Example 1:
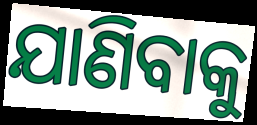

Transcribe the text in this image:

ଯାଣିବାକୁ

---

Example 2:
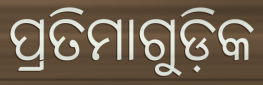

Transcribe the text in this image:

ପ୍ରତିମାଗୁଡ଼ିକ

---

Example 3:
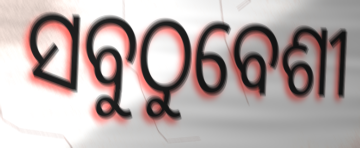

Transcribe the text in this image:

ସବୁଠୁବେଶୀ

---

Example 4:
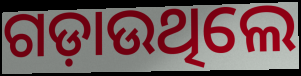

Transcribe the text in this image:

ଗଡ଼ାଉଥିଲେ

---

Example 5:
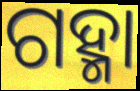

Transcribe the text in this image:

ଗହ୍ମା